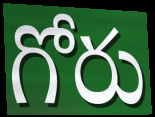
గోరు